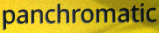
panchromatic